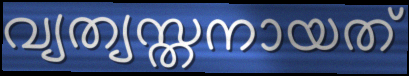
വ്യത്യസ്തനായത്